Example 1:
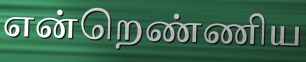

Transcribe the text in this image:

என்றெண்ணிய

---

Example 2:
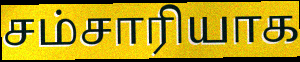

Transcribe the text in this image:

சம்சாரியாக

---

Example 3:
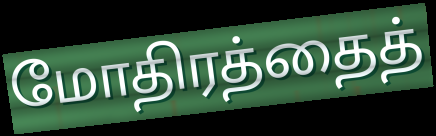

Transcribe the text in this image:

மோதிரத்தைத்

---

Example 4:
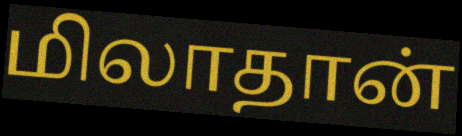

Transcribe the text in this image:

மிலாதான்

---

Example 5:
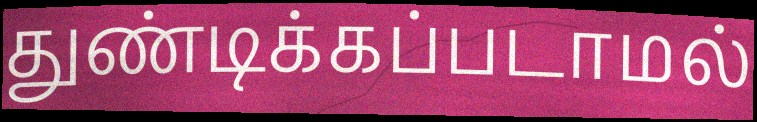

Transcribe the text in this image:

துண்டிக்கப்படாமல்